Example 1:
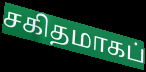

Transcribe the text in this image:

சகிதமாகப்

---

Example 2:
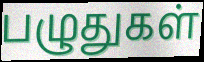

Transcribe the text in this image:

பழுதுகள்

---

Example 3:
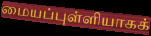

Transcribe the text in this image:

மையப்புள்ளியாகக்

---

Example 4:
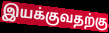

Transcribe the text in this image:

இயக்குவதற்கு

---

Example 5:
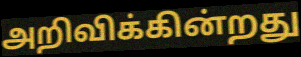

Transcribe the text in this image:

அறிவிக்கின்றது